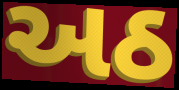
અઠ